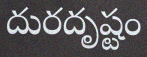
దురదృష్టం